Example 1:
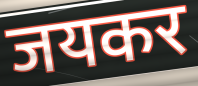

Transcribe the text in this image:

जयकर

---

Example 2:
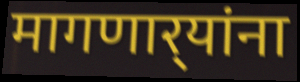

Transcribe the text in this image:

मागणार्‍यांना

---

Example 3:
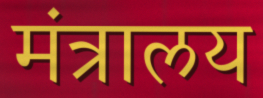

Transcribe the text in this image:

मंत्रालय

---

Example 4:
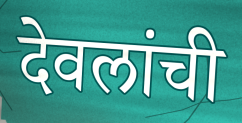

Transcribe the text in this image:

देवलांची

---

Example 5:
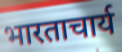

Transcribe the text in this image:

भारताचार्य